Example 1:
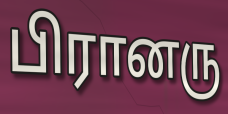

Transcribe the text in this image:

பிரானரு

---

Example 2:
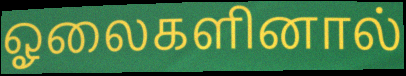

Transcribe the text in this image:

ஓலைகளினால்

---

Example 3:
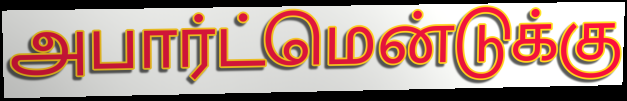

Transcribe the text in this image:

அபார்ட்மென்டுக்கு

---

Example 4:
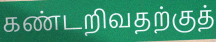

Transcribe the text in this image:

கண்டறிவதற்குத்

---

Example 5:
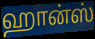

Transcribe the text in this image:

ஹான்ஸ்